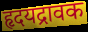
हृदयद्रावक